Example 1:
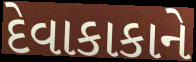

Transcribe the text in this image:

દેવાકાકાને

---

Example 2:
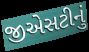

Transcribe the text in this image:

જીએસટીનું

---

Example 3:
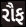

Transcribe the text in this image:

રૌફ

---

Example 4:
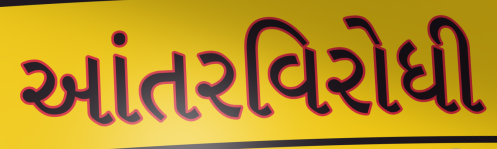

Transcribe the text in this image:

આંતરવિરોધી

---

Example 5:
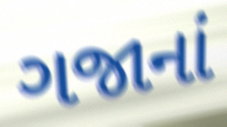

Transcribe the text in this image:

ગજાનાં